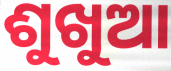
ଶୁଖୁଆ